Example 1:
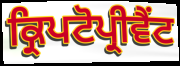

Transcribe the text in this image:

ਕ੍ਰਿਪਟੋਪ੍ਰੀਵੈਂਟ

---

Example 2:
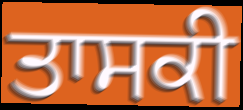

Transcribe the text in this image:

ਤਾਸਕੀ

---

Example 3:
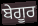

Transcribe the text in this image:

ਬੇਗੂਰ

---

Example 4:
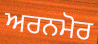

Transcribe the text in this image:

ਅਰਨਮੋਰ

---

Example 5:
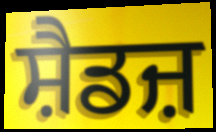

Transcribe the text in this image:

ਸ਼ੈਡਜ਼